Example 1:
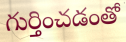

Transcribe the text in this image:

గుర్తించడంతో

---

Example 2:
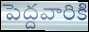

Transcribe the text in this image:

పెద్దవారికి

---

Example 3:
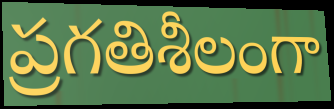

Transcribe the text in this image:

ప్రగతిశీలంగా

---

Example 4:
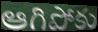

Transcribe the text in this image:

ఆగిపోకు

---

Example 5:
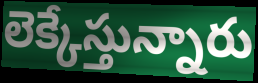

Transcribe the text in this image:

లెక్కేస్తున్నారు